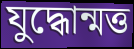
যুদ্ধোন্মত্ত